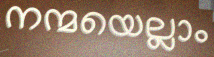
നന്മയെല്ലാം